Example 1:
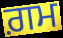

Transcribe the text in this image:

ਗ਼ਮ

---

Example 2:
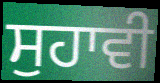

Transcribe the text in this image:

ਸੁਹਾਵੀ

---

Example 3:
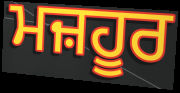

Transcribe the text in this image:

ਮਜ਼ਹੂਰ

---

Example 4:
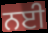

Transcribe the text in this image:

ਨਈ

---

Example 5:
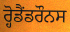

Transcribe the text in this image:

ਰ੍ਹੋਡੈਂਡਰੌਨਸ